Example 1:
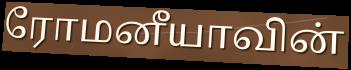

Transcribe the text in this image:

ரோமனீயாவின்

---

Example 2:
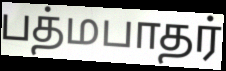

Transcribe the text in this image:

பத்மபாதர்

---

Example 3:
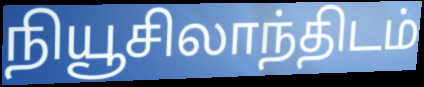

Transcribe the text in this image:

நியூசிலாந்திடம்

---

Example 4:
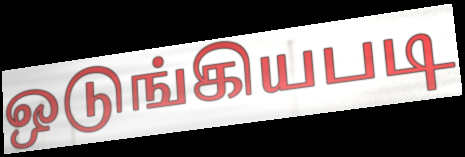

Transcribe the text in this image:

ஒடுங்கியபடி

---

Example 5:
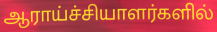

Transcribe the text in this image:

ஆராய்ச்சியாளர்களில்